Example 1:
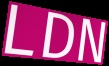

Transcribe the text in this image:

LDN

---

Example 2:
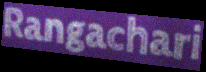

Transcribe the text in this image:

Rangachari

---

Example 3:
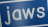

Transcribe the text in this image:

jaws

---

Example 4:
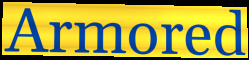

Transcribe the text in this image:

Armored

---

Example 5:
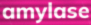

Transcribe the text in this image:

amylase